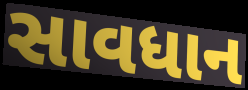
સાવધાન